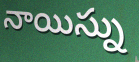
నాయిస్ను